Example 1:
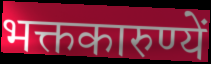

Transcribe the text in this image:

भक्तकारुण्यें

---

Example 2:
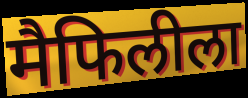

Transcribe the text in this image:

मैफिलीला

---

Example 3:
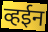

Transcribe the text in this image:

व्हईन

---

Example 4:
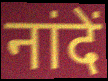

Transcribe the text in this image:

नांदें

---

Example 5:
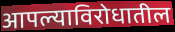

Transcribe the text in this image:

आपल्याविरोधातील